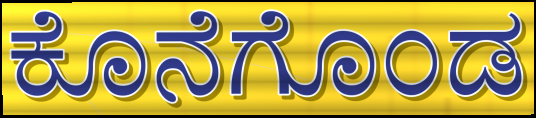
ಕೊನೆಗೊಂಡ